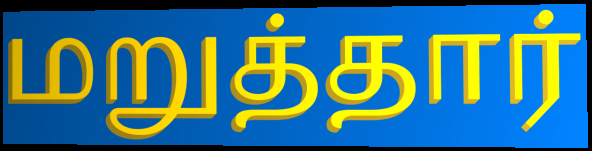
மறுத்தார்